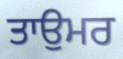
ਤਾਉਮਰ